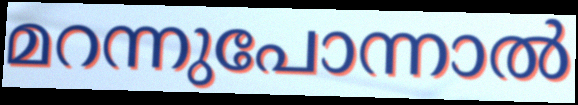
മറന്നുപോന്നാൽ